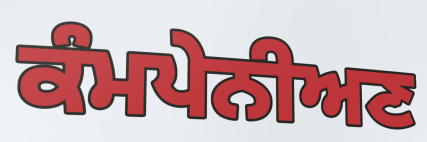
ਕੰਮਪੇਨੀਅਣ